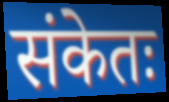
संकेतः